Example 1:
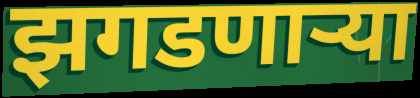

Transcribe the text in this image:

झगडणाऱ्या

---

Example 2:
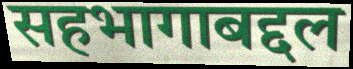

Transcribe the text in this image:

सहभागाबद्दल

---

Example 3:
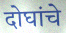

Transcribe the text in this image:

दोघांचे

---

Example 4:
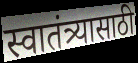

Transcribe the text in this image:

स्वातंत्र्यासाठी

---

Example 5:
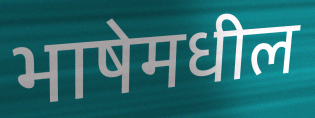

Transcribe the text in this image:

भाषेमधील